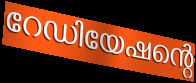
റേഡിയേഷന്റെ